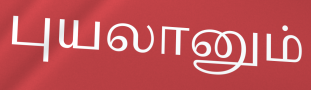
புயலானும்